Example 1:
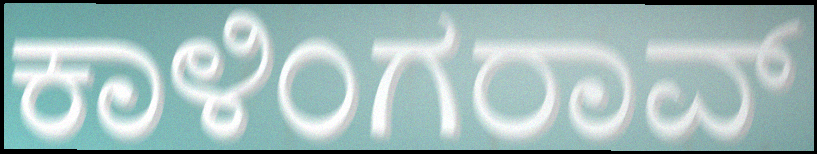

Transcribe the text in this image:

ಕಾಳಿಂಗರಾವ್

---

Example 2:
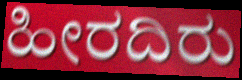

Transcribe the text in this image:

ಹೀರದಿರು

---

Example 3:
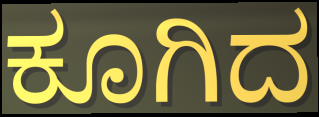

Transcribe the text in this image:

ಕೂಗಿದ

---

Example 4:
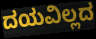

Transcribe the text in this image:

ದಯವಿಲ್ಲದ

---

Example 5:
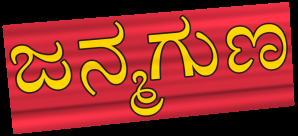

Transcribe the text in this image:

ಜನ್ಮಗುಣ